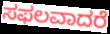
ಸಫಲವಾದರೆ